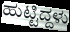
ಹುಟ್ಟಿದ್ದಳು